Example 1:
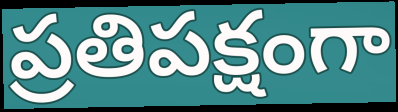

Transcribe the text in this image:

ప్రతిపక్షంగా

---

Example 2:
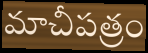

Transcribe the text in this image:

మాచీపత్రం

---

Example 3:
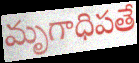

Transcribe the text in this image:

మృగాధిపతే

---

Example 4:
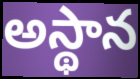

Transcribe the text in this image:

అస్థాన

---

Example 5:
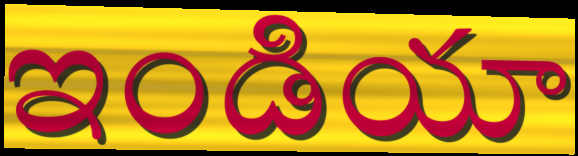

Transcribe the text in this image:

ఇండియా